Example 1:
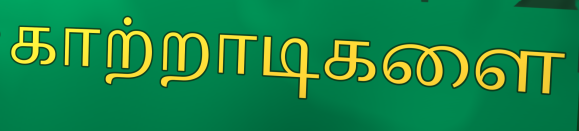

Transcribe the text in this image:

காற்றாடிகளை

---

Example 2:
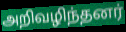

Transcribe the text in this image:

அறிவழிந்தனர்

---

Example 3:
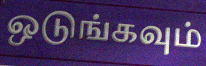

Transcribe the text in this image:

ஒடுங்கவும்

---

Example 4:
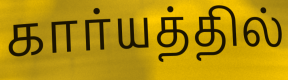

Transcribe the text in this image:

கார்யத்தில்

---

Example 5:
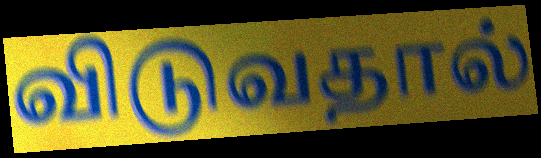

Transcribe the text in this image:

விடுவதால்